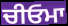
ਚੀਓਮਾ